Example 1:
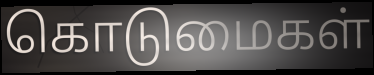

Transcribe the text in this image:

கொடுமைகள்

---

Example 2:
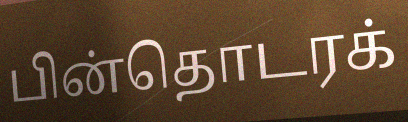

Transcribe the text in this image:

பின்தொடரக்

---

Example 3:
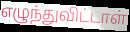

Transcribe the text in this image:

எழுந்துவிட்டாள்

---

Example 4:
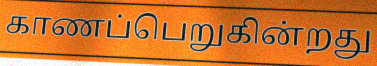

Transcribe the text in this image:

காணப்பெறுகின்றது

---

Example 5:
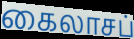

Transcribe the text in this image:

கைலாசப்